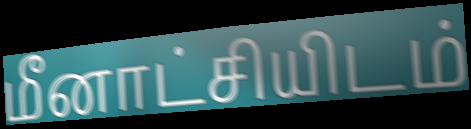
மீனாட்சியிடம்